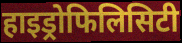
हाइड्रोफिलिसिटी